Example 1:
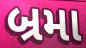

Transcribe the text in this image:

બ્રમા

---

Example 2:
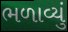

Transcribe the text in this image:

ભળાવ્યું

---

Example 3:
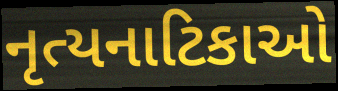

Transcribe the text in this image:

નૃત્યનાટિકાઓ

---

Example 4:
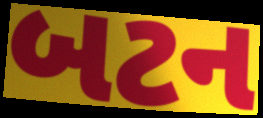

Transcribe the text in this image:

બટન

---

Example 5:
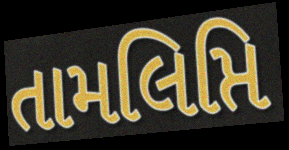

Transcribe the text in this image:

તામલિપ્તિ